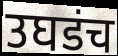
उघडंच